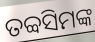
ତବ୍ବସିମଙ୍କ